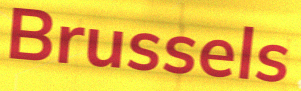
Brussels